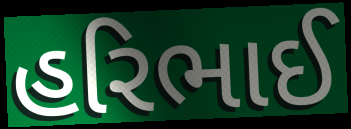
હરિભાઈ